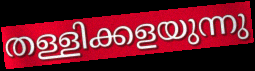
തള്ളിക്കളയുന്നു